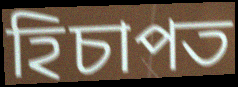
হিচাপত